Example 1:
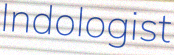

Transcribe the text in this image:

Indologist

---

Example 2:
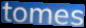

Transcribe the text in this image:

tomes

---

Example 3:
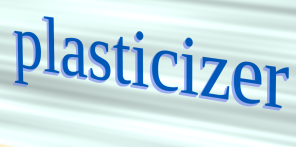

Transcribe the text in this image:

plasticizer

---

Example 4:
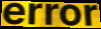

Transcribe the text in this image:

error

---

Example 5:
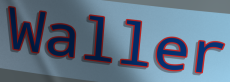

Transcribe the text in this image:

Waller